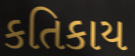
કતિકાય